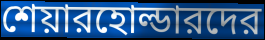
শেয়ারহোল্ডারদের